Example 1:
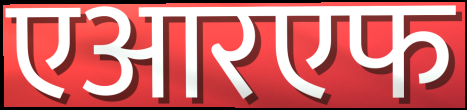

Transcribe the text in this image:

एआरएफ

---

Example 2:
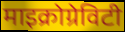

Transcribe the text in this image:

माइक्रोग्रेविटी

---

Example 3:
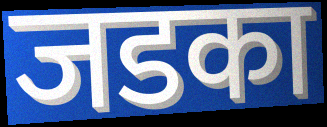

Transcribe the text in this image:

जडका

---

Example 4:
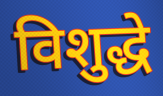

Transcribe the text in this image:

विशुद्धे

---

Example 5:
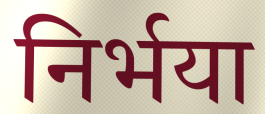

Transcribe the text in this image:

निर्भया